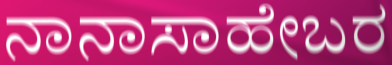
ನಾನಾಸಾಹೇಬರ